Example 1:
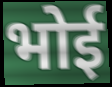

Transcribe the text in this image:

भोई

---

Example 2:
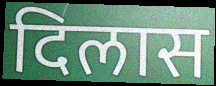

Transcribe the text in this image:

दिलास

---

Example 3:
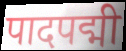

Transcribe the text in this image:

पादपद्मी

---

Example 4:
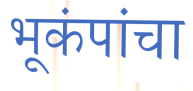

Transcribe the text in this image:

भूकंपांचा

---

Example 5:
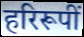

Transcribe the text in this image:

हरिरूपीं